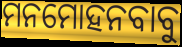
ମନମୋହନବାବୁ